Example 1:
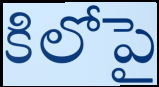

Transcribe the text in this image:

కిలోపై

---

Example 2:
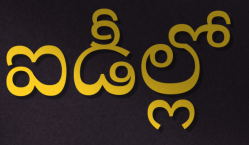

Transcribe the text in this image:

ఐడీల్లో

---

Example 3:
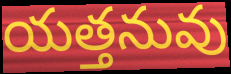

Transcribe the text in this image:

యత్తనువు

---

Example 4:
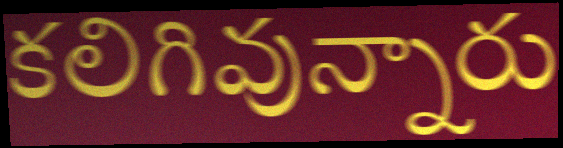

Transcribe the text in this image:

కలిగివున్నారు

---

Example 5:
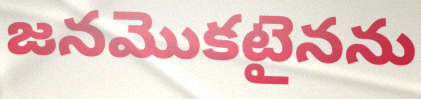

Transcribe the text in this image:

జనమొకటైనను